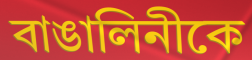
বাঙালিনীকে